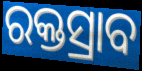
ରକ୍ତସ୍ରାବ